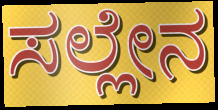
ಸಲ್ಲೇನ